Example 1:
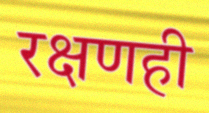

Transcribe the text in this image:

रक्षणही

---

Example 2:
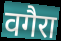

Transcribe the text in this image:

वगैरा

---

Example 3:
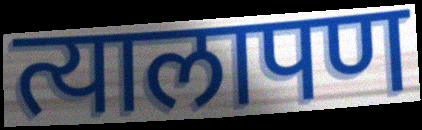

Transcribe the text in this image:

त्यालापण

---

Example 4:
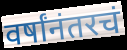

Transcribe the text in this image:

वर्षांनंतरचं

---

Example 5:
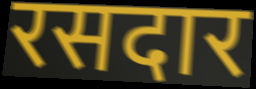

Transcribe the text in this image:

रसदार